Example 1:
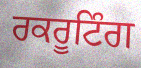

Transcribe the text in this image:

ਰਕਰੂਟਿੰਗ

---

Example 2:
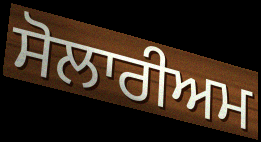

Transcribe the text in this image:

ਸੋਲਾਰੀਅਮ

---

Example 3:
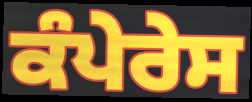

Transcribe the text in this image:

ਕੰਪੇਰੇਸ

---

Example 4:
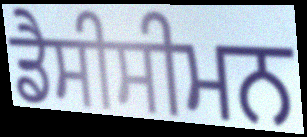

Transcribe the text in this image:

ਡੈਸੀਸੀਮਨ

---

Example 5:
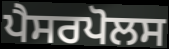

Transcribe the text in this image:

ਪੈਸਰਪੋਲਸ